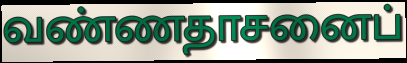
வண்ணதாசனைப்